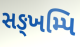
સઙ્ખમ્પિ